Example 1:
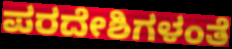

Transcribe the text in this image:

ಪರದೇಶಿಗಳಂತೆ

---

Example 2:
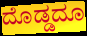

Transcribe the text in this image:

ದೊಡ್ಡದೂ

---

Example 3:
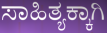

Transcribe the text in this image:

ಸಾಹಿತ್ಯಕ್ಕಾಗಿ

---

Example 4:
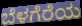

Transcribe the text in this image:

ಬೆಳಗೆರೆಯ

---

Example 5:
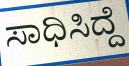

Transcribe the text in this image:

ಸಾಧಿಸಿದ್ದೆ